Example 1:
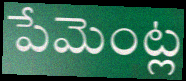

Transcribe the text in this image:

పేమెంట్ల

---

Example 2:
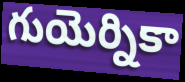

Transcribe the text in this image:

గుయెర్నికా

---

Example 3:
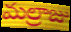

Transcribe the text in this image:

మల్రాజు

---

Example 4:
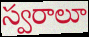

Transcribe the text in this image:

స్వరాలూ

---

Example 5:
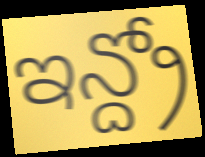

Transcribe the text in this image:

ఇన్ద్రో